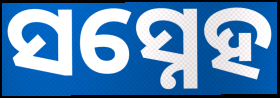
ସସ୍ନେହ